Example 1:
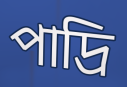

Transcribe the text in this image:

পাদ্রি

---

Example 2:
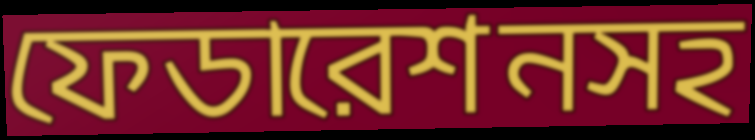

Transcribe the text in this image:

ফেডারেশনসহ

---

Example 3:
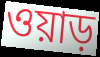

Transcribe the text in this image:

ওয়াড়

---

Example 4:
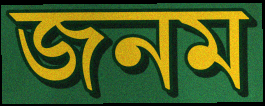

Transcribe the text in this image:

জনম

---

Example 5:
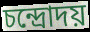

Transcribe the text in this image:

চন্দ্রোদয়